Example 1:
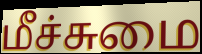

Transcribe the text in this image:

மீச்சுமை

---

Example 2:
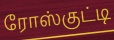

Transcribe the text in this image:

ரோஸ்குட்டி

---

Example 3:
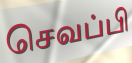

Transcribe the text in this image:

செவப்பி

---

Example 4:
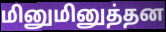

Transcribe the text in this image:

மினுமினுத்தன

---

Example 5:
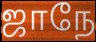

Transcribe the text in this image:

ஜாநே